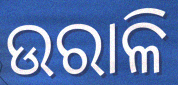
ଉରାଳି